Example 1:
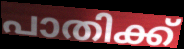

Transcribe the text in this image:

പാതിക്ക്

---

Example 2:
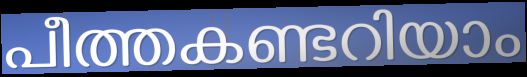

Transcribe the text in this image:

പീത്തകണ്ടറിയാം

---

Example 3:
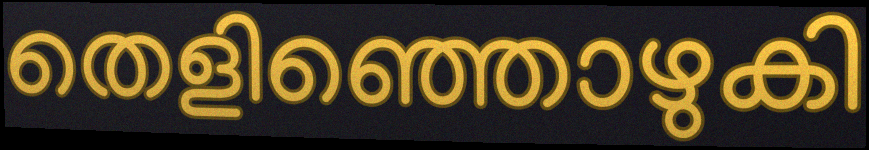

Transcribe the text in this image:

തെളിഞ്ഞൊഴുകി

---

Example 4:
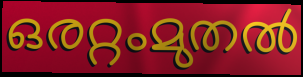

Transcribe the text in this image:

ഒരറ്റംമുതൽ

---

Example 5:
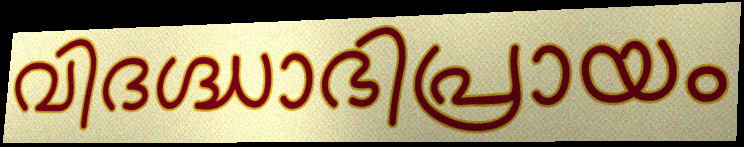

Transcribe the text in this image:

വിദഗ്ദ്ധാഭിപ്രായം